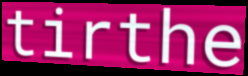
tirthe